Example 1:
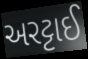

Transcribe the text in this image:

અરટ્ટાઈ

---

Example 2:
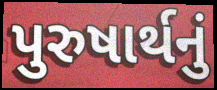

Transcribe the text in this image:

પુરુષાર્થનું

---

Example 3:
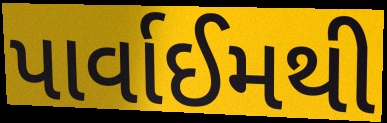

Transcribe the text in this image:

પાર્વાઈમથી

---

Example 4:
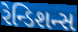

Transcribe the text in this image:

રેન્ડિશન્સ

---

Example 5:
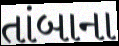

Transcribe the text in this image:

તાંબાના